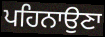
ਪਹਿਨਾਉਣਾ